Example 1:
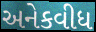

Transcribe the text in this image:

અનેકવીધ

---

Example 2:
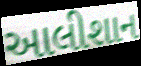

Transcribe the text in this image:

આલીશાન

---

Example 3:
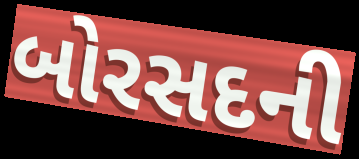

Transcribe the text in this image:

બોરસદની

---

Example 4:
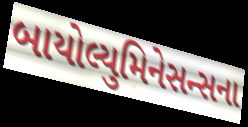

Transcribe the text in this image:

બાયોલ્યુમિનેસન્સના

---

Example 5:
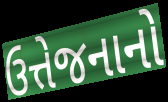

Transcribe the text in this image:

ઉત્તેજનાનો